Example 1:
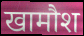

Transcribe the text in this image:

खामौश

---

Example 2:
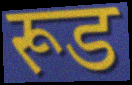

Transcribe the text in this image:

रूड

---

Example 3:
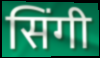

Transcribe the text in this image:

सिंगी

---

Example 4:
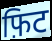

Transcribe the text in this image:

फ़िट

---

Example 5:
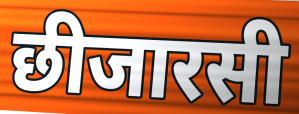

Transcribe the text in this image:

छीजारसी